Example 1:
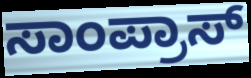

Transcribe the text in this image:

ಸಾಂಪ್ರಾಸ್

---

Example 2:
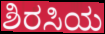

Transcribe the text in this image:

ಶಿರಸಿಯ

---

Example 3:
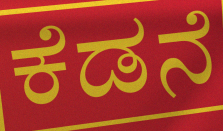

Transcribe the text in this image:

ಕೆಡನೆ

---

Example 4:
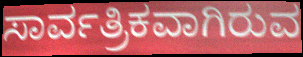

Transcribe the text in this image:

ಸಾರ್ವತ್ರಿಕವಾಗಿರುವ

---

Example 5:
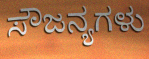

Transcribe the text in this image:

ಸೌಜನ್ಯಗಳು